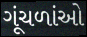
ગૂંચળાંઓ